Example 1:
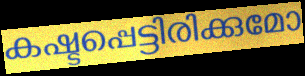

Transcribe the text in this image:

കഷ്ടപ്പെട്ടിരിക്കുമോ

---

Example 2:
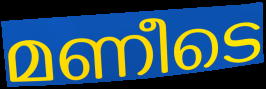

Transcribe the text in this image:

മണീടെ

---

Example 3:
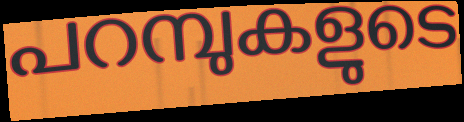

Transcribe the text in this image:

പറമ്പുകളുടെ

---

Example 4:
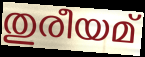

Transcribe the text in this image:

തുരീയമ്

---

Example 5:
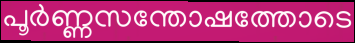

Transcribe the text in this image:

പൂർണ്ണസന്തോഷത്തോടെ